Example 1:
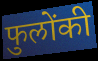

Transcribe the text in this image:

फुलोंकी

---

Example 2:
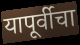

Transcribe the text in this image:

यापूर्वीचा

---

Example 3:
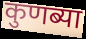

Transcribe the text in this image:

कुणब्या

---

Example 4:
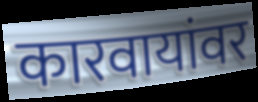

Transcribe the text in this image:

कारवायांवर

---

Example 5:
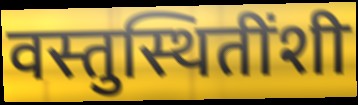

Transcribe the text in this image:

वस्तुस्थितींशी